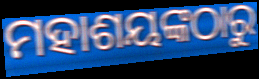
ମହାଶୟଙ୍କଠାରୁ